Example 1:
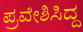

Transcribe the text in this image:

ಪ್ರವೇಶಿಸಿದ್ದ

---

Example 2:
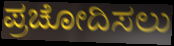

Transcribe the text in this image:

ಪ್ರಚೋದಿಸಲು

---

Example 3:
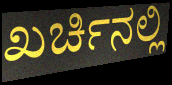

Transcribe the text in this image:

ಖರ್ಚಿನಲ್ಲಿ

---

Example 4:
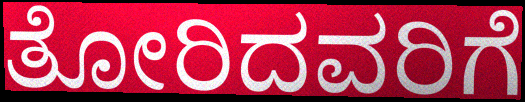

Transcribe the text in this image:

ತೋರಿದವರಿಗೆ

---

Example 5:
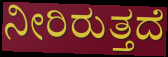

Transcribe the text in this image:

ನೀರಿರುತ್ತದೆ